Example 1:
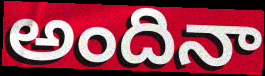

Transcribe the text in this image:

అందినా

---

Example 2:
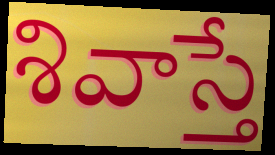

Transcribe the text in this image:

శివాస్తే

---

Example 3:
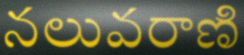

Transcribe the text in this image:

నలువరాణి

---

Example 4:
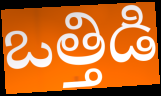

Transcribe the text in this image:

ఒత్తిడి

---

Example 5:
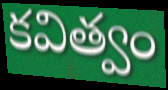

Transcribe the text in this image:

కవిత్వం